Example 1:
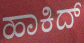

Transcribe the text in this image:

ಹಾಕಿದ್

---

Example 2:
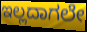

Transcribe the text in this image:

ಇಲ್ಲದಾಗಲೇ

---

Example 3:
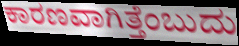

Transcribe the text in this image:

ಕಾರಣವಾಗಿತ್ತೆಂಬುದು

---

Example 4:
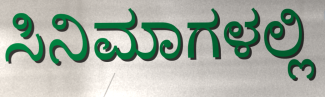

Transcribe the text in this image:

ಸಿನಿಮಾಗಳಲ್ಲಿ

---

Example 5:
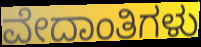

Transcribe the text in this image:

ವೇದಾಂತಿಗಳು